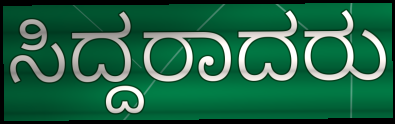
ಸಿದ್ದರಾದರು